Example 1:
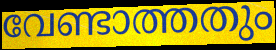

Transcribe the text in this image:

വേണ്ടാത്തതും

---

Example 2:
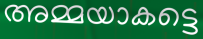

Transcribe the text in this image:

അമ്മയാകട്ടെ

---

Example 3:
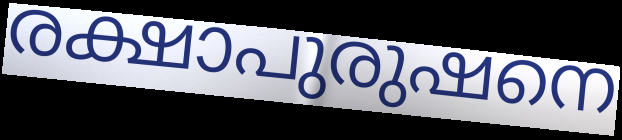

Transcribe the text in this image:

രക്ഷാപുരുഷനെ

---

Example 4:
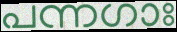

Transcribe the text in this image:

പന്നഗാഃ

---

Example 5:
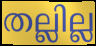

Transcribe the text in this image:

തല്ലില്ല